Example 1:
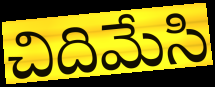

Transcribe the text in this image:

చిదిమేసి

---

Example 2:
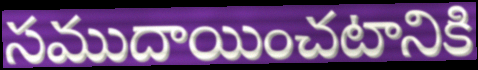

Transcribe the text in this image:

సముదాయించటానికి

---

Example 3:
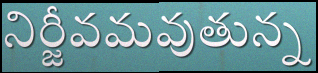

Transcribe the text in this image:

నిర్జీవమవుతున్న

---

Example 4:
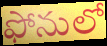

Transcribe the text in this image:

ఫోనులో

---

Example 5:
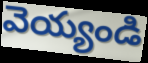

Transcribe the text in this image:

వెయ్యండి